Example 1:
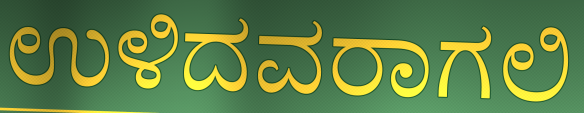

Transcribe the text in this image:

ಉಳಿದವರಾಗಲಿ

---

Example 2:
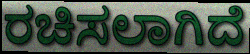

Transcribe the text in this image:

ರಚಿಸಲಾಗಿದೆ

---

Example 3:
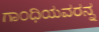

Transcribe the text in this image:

ಗಾಂಧಿಯವರನ್ನ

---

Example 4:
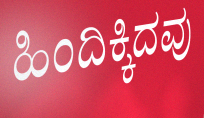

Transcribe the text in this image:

ಹಿಂದಿಕ್ಕಿದವು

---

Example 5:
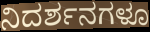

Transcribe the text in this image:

ನಿದರ್ಶನಗಳೂ